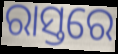
ରାସ୍ତରେ